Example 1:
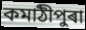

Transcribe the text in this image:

কমাঠীপুৰা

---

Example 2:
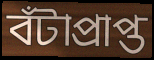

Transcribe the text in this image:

বঁটাপ্ৰাপ্ত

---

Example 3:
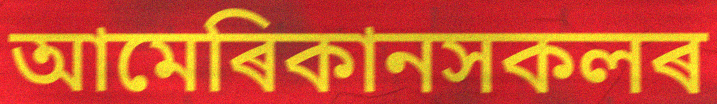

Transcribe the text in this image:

আমেৰিকানসকলৰ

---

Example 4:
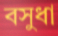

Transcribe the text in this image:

বসুধা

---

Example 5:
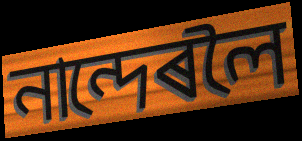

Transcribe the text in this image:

নান্দেৰলৈ